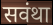
सवंथा